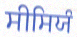
ਸੀਸਿਯੰ